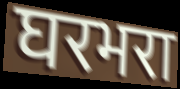
घरभरा